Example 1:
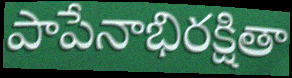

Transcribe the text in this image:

పాపేనాభిరక్షితా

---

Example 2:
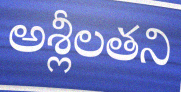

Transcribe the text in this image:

అశ్లీలతని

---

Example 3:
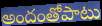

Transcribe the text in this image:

అందంతోపాటు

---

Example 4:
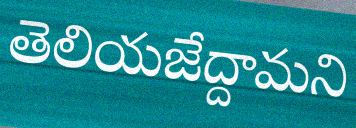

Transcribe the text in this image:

తెలియజేద్దామని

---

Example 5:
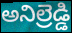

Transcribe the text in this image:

అనిల్రెడ్డి